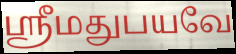
ஸ்ரீமதுபயவே